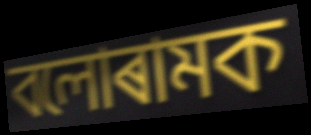
বলোৰামক